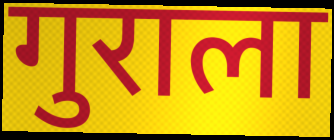
गुराला